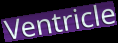
Ventricle